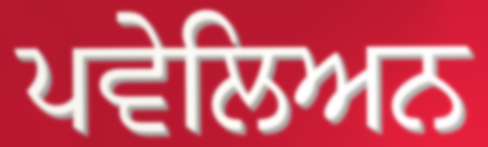
ਪਵੇਲਿਅਨ